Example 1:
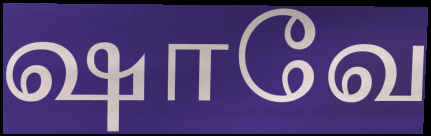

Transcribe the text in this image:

ஷாவே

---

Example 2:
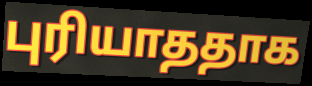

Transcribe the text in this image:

புரியாததாக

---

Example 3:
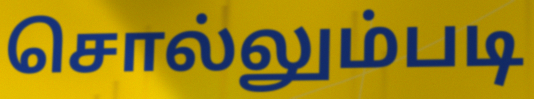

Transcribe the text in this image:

சொல்லும்படி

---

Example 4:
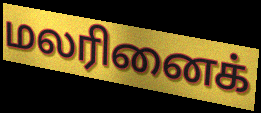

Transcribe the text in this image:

மலரினைக்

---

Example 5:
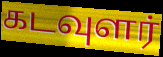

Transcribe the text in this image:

கடவுளர்